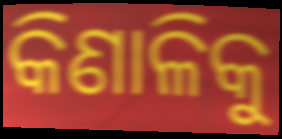
କିଣାଳିକୁ